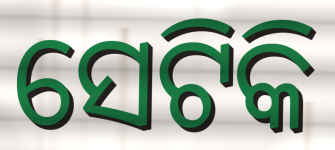
ସେଟିକି